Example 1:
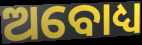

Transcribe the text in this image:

ଅବୋଧ୍ୟ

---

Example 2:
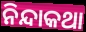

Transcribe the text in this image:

ନିନ୍ଦାକଥା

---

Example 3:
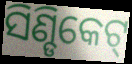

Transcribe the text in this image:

ସିଣ୍ଡିକେଟ୍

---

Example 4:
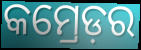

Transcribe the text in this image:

କମ୍ରେଡ଼ର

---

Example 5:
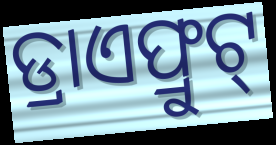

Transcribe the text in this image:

ଡ୍ରାଏଫ୍ରୁଟ୍